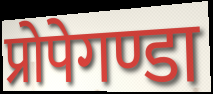
प्रोपेगण्डा